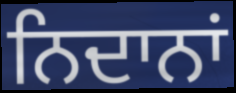
ਨਿਦਾਨਾਂ